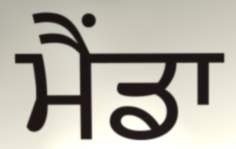
ਮੈਂਡਾ